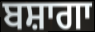
ਬਸ਼ਾਗਾ